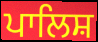
ਪਾਲਿਸ਼